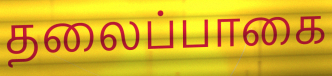
தலைப்பாகை